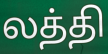
லத்தி